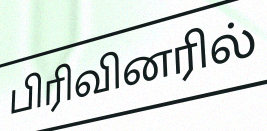
பிரிவினரில்